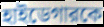
হাইডেগারকে